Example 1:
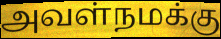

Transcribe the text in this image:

அவள்நமக்கு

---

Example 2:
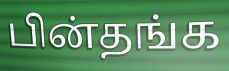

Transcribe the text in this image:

பின்தங்க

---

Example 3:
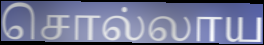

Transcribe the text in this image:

சொல்லாய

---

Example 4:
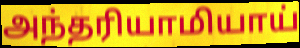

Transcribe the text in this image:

அந்தரியாமியாய்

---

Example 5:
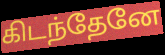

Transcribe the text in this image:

கிடந்தேனே